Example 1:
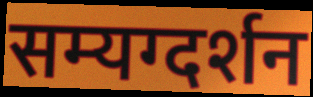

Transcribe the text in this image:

सम्यग्दर्शन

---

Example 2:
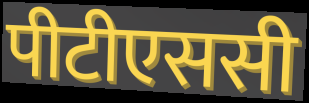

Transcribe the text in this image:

पीटीएससी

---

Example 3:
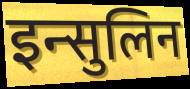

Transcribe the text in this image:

इन्सुलिन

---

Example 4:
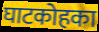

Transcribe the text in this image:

घाटकोहका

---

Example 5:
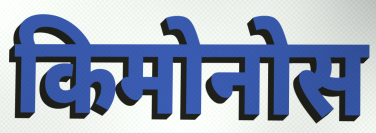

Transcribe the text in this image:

किमोनोस